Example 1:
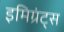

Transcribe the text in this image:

इमिग्रंट्स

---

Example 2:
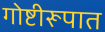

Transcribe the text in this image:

गोष्टीरूपात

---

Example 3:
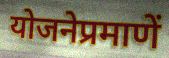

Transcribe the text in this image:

योजनेप्रमाणें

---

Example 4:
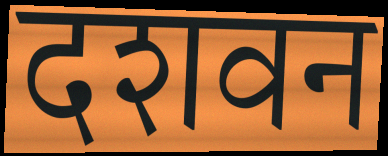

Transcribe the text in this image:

दशवन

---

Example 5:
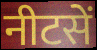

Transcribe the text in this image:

नीटसें